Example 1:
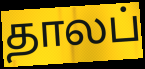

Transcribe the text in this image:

தாலப்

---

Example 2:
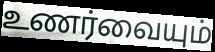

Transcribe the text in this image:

உணர்வையும்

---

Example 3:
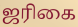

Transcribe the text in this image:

ஜரிகை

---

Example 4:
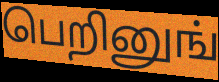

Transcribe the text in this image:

பெறினுங்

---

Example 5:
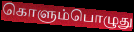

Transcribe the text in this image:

கொளும்பொழுது